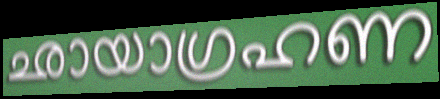
ഛായാഗ്രഹണ